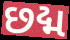
છદ્મ